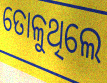
ତୋଳୁଥିଲେ